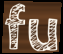
fu